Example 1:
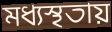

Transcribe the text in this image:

মধ্যস্থতায়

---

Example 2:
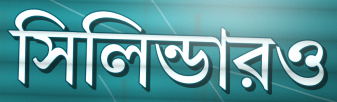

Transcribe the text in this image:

সিলিন্ডারও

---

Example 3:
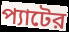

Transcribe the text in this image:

প্যাটের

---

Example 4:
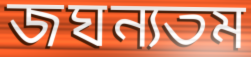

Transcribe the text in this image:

জঘন্যতম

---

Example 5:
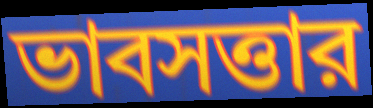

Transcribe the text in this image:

ভাবসত্তার